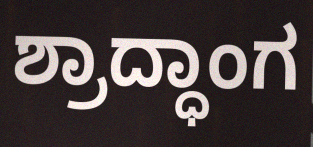
ಶ್ರಾದ್ಧಾಂಗ